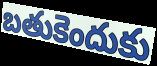
బతుకెందుకు